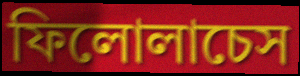
ফিলোলাচেস